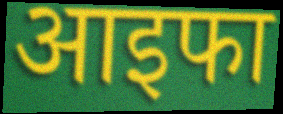
आइफा